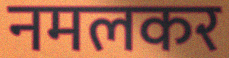
नमलकर